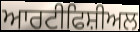
ਆਰਟੀਫਿਸ਼ੀਅਲ